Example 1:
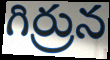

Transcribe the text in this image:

గిర్రున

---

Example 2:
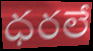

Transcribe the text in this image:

ధరలే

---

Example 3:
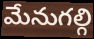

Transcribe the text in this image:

మేనుగల్గి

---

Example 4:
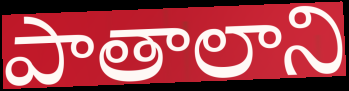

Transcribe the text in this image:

పాతాలాని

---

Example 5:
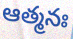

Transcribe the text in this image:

ఆత్మనః